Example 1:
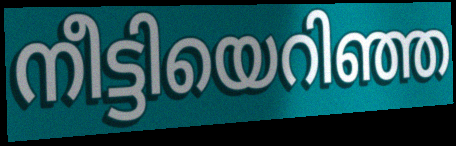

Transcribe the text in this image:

നീട്ടിയെറിഞ്ഞ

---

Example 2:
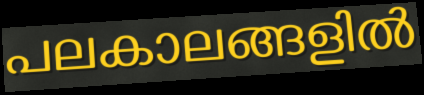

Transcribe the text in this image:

പലകാലങ്ങളിൽ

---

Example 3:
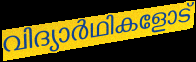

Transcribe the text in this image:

വിദ്യാർഥികളോട്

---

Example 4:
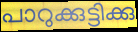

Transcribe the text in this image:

പാറുക്കുട്ടിക്കു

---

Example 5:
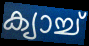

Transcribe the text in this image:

ക്യാച്ച്